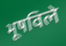
भूषविले